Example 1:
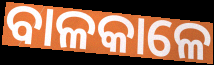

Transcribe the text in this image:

ବାଳକାଳେ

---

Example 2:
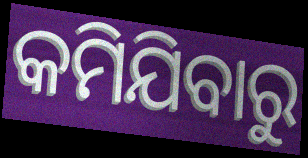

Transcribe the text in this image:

କମିଯିବାରୁ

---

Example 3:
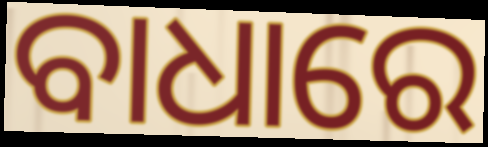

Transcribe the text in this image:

ବାଧାରେ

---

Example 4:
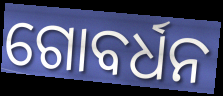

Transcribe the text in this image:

ଗୋବର୍ଧନ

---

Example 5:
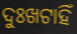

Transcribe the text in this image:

ଦୁଃଖଟାହିଁ